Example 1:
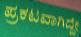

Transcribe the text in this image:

ಪ್ರಕಟವಾಗಿದ್ದೇ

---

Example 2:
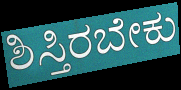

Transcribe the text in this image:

ಶಿಸ್ತಿರಬೇಕು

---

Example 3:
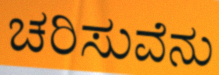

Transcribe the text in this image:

ಚರಿಸುವೆನು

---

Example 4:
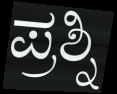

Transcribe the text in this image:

ಪ್ರಶ್ನಿ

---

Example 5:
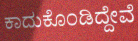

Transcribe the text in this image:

ಕಾದುಕೊಂಡಿದ್ದೇವೆ